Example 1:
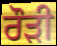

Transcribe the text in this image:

ਰੌੜੀ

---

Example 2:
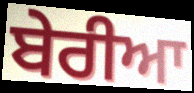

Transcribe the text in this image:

ਬੇਰੀਆ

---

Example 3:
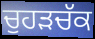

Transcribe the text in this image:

ਚੁਹੜਚੱਕ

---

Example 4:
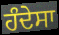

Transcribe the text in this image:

ਹੰਦੇਸਾ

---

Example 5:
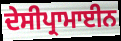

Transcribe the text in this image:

ਦੇਸੀਪ੍ਰਾਮਾਈਨ